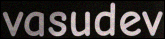
vasudev